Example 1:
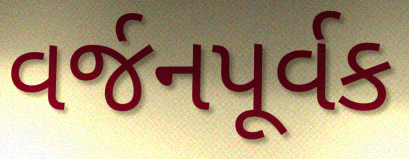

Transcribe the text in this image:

વર્જનપૂર્વક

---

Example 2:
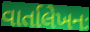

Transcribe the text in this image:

વાર્તાલેખનઃ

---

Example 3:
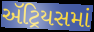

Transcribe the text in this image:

ઍટ્રિયસમાં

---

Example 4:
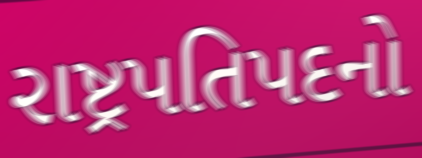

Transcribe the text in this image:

રાષ્ટ્રપતિપદનો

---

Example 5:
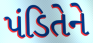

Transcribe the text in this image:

પંડિતેને